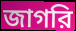
জাগরি